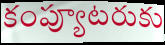
కంప్యూటరుకు